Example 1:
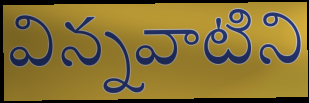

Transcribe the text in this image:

విన్నవాటిని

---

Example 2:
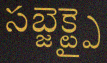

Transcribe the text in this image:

సబ్జెక్ట్పై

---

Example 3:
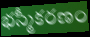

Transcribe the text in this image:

భస్మీకరణం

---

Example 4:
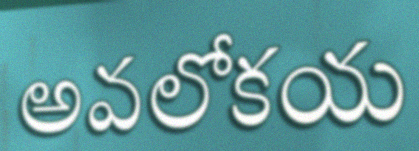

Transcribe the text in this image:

అవలోకయ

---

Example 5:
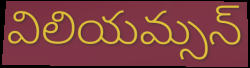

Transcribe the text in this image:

విలియమ్సన్